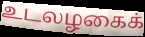
உடலழகைக்